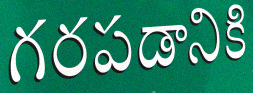
గరపడానికి